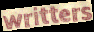
writters